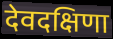
देवदक्षिणा